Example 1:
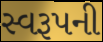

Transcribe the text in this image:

સ્વરૂપની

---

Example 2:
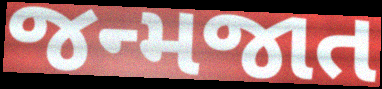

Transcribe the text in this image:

જન્મજાત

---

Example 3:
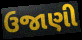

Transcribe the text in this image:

ઉજાણી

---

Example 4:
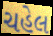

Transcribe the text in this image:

ચહેલ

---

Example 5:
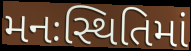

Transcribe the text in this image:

મનઃસ્થિતિમાં